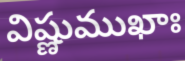
విష్ణుముఖాః